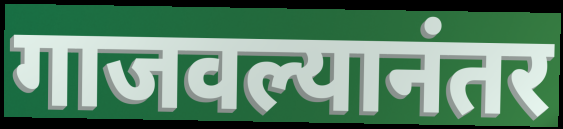
गाजवल्यानंतर